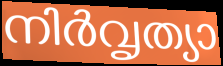
നിർവൃത്യാ